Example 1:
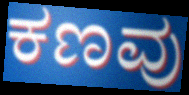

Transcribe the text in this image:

ಕಣವು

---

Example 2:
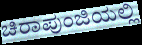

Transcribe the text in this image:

ಚಿರಾಪುಂಜಿಯಲ್ಲಿ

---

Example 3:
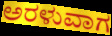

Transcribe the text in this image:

ಅರಳುವಾಗ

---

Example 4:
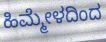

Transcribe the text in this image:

ಹಿಮ್ಮೇಳದಿಂದ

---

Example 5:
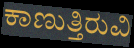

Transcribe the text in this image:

ಕಾಣುತ್ತಿರುವಿ